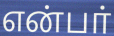
என்பர்